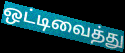
ஒட்டிவைத்து